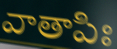
వాతాపిః